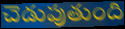
చెడుపుతుంది